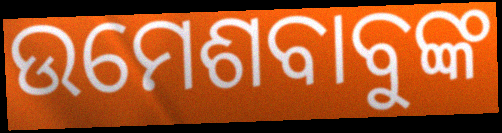
ଉମେଶବାବୁଙ୍କ